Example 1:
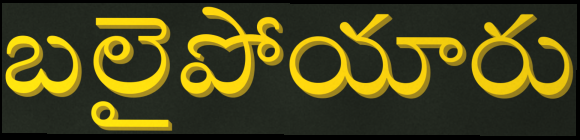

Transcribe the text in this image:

బలైపోయారు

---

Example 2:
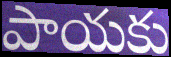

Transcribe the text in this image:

పాయకు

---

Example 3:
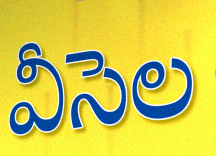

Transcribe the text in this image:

వీసెల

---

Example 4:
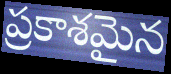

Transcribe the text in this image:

ప్రకాశమైన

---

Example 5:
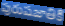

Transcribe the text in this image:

పురుషజాతికి